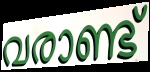
വരാണ്ട്